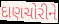
દાણચોરીને